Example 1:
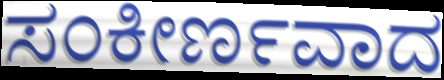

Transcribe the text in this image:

ಸಂಕೀರ್ಣವಾದ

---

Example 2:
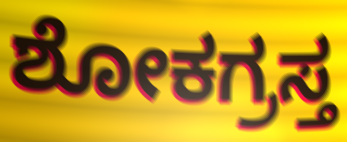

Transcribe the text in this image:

ಶೋಕಗ್ರಸ್ತ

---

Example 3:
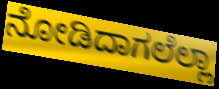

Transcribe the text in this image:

ನೋಡಿದಾಗಲೆಲ್ಲಾ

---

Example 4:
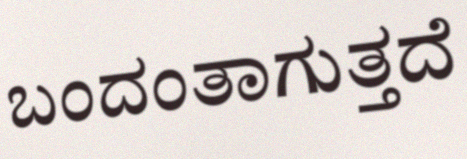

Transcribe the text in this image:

ಬಂದಂತಾಗುತ್ತದೆ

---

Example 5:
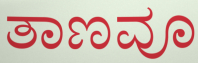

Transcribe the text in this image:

ತಾಣವೂ